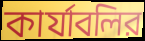
কার্যাবলির